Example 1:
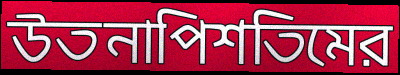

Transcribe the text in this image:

উতনাপিশতিমের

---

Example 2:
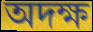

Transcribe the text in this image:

অদক্ষ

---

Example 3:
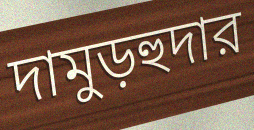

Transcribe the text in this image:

দামুড়হুদার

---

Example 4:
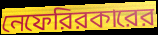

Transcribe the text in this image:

নেফেরিরকারের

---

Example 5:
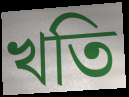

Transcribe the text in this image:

খতি